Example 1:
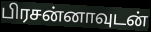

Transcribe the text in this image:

பிரசன்னாவுடன்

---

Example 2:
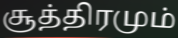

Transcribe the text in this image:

சூத்திரமும்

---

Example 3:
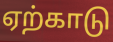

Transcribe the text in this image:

ஏற்காடு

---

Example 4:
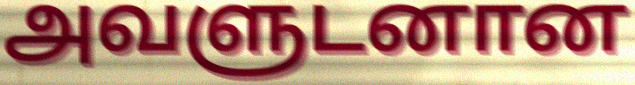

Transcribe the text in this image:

அவளுடனான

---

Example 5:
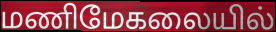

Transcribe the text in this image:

மணிமேகலையில்